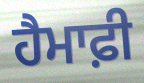
ਹੈਮਾਫ਼ੀ